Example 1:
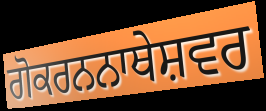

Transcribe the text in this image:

ਗੋਕਰਨਨਾਥੇਸ਼ਵਰ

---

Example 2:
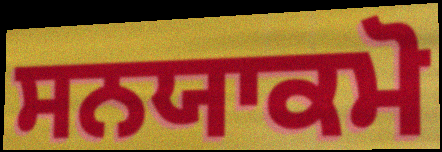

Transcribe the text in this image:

ਸਨਯਾਕਮੋ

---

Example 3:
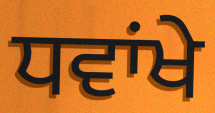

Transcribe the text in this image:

ਧਵਾਂਖੇ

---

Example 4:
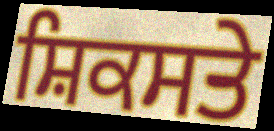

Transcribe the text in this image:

ਸ਼ਿਕਸਤੇ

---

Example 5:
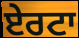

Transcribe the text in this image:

ਏਰਟਾ